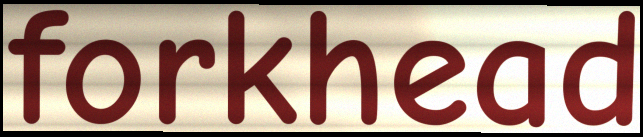
forkhead